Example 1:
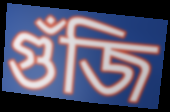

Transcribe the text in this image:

গুঁজি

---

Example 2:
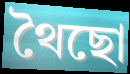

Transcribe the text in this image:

থৈছো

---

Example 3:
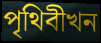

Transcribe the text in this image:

পৃথিবীখন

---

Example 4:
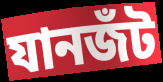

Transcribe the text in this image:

যানজঁট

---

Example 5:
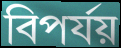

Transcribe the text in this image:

বিপৰ্যয়